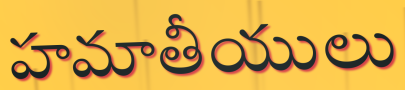
హమాతీయులు